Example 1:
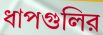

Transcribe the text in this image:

ধাপগুলির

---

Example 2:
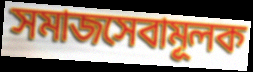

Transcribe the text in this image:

সমাজসেবামূলক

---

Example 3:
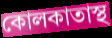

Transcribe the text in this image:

কোলকাতাস্থ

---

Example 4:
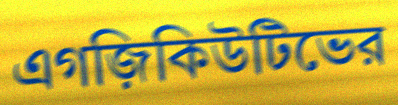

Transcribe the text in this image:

এগজ়িকিউটিভের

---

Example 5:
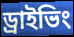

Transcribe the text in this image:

ড্রাইভিং